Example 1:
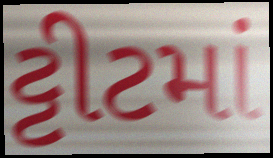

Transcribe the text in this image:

ટ્ટીટમાં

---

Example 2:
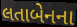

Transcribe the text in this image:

લતાબેનના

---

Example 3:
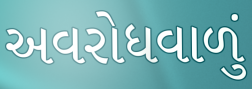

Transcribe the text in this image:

અવરોધવાળું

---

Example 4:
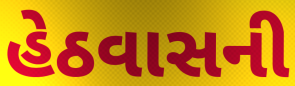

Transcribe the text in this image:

હેઠવાસની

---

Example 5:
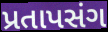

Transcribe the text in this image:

પ્રતાપસંગ